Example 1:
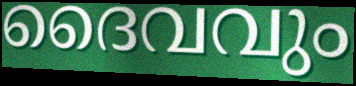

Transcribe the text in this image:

ദൈവവും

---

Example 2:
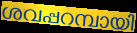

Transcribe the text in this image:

ശവപ്പറമ്പായി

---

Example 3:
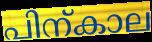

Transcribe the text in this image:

പിന്കാല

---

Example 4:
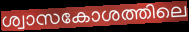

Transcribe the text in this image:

ശ്വാസകോശത്തിലെ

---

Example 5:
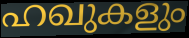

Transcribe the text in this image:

ഹഖുകളും